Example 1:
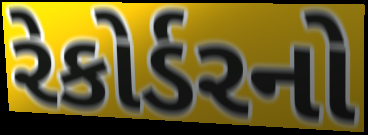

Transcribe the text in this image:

રેકોર્ડરનો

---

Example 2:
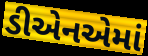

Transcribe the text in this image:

ડીએનએમાં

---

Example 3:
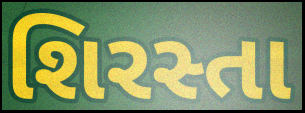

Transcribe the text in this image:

શિરસ્તા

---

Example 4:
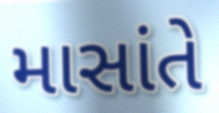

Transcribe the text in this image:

માસાંતે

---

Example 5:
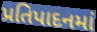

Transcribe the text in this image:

પ્રતિપાદનમાં